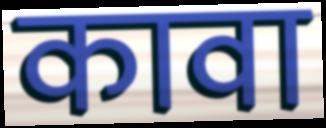
कावा